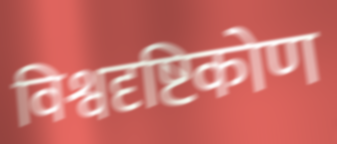
विश्वदृष्टिकोण